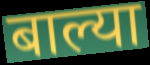
बाल्या